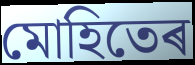
মোহিতেৰ